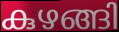
കുഴങ്ങി